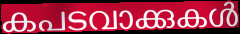
കപടവാക്കുകൾ